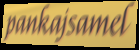
pankajsamel